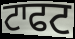
ਟਾਫਟ